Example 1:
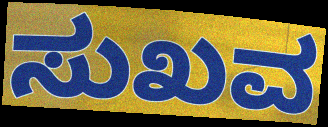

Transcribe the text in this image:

ಸುಖವ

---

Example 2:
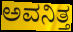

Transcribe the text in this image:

ಅವನಿತ್ತ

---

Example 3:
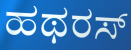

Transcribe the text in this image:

ಹಥರಸ್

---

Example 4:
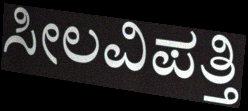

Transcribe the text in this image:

ಸೀಲವಿಪತ್ತಿ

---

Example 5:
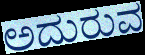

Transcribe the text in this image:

ಅದುರುವ